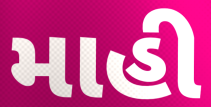
માહી